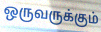
ஒருவருக்கும்